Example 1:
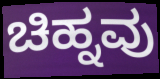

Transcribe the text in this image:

ಚಿಹ್ನವು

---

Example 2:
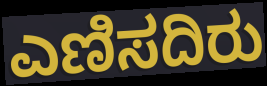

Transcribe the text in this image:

ಎಣಿಸದಿರು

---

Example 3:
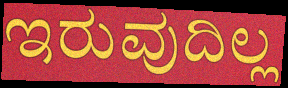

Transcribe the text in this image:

ಇರುವುದಿಲ್ಲ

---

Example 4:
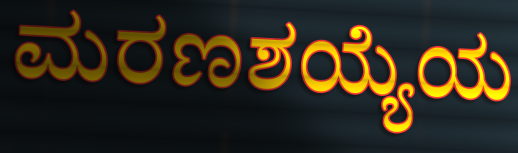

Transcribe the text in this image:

ಮರಣಶಯ್ಯೆಯ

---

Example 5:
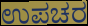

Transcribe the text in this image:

ಉಪಚರ